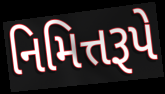
નિમિત્તરૂપે